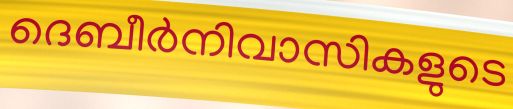
ദെബീർനിവാസികളുടെ